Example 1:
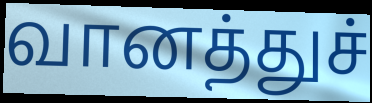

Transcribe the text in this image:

வானத்துச்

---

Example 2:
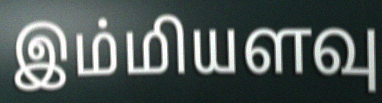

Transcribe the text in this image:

இம்மியளவு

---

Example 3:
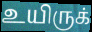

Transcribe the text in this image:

உயிருக்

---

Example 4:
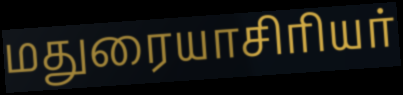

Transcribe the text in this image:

மதுரையாசிரியர்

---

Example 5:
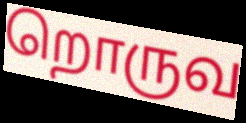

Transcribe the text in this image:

றொருவ